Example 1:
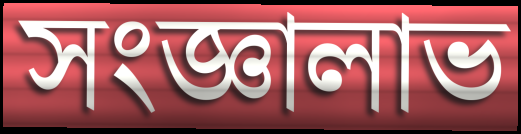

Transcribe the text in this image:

সংজ্ঞালাভ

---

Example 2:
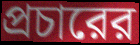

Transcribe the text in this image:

প্রচারের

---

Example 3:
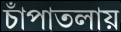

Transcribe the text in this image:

চাঁপাতলায়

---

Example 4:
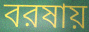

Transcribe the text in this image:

বরষায়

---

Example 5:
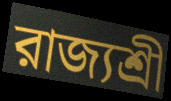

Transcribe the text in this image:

রাজ্যশ্রী